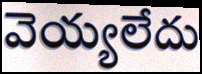
వెయ్యలేదు